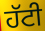
ਹੱਟੀ